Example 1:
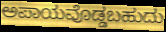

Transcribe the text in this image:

ಅಪಾಯವೊಡ್ಡಬಹುದು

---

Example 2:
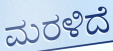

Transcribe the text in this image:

ಮರಳಿದೆ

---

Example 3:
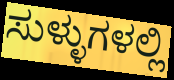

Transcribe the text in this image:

ಸುಳ್ಳುಗಳಲ್ಲಿ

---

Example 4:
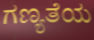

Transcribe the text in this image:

ಗಣ್ಯತೆಯ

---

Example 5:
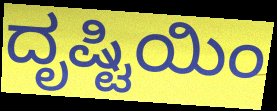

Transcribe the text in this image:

ದೃಷ್ಟಿಯಿಂ